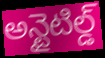
అన్టైటిల్డ్